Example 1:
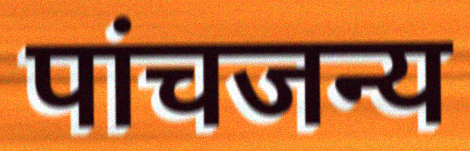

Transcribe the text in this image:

पांचजन्य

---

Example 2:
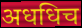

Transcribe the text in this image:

अधधिच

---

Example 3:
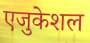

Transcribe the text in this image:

एजुकेशल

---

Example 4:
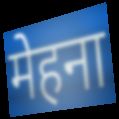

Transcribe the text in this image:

मेहना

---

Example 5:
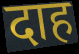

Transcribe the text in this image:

दाह